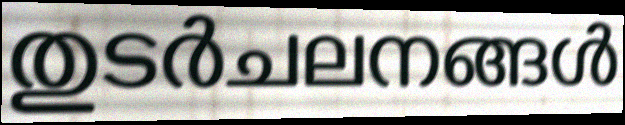
തുടർചലനങ്ങൾ